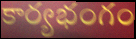
కార్యభంగం